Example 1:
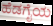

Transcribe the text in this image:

ಹೆಡಗೈಯ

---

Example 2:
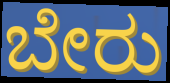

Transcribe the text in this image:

ಬೇರು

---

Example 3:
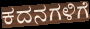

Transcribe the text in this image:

ಕದನಗಳಿಗೆ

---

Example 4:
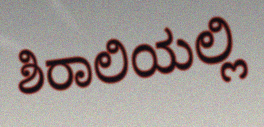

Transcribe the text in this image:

ಶಿರಾಲಿಯಲ್ಲಿ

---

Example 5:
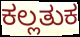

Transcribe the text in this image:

ಕಲ್ಲತುಕ